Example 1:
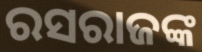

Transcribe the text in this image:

ରସରାଜଙ୍କ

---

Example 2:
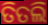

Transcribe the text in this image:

ତିତଲି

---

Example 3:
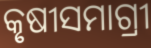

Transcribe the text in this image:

କୃଷୀସମାଗ୍ରୀ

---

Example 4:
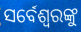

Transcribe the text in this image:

ସର୍ବେଶ୍ୱରଙ୍କୁ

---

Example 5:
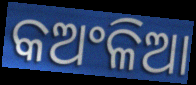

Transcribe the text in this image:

କଅଂଳିଆ